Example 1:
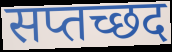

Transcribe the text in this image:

सप्तच्छद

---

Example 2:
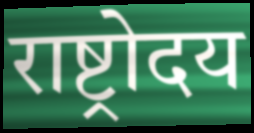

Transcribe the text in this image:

राष्ट्रोदय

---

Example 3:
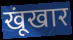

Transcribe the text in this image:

खूंखार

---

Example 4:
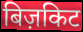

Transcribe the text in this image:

बिज़किट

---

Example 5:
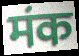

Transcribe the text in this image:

मंक